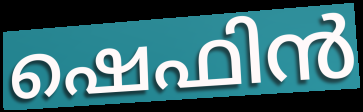
ഷെഫിൻ